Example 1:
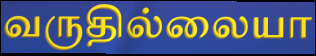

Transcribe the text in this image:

வருதில்லையா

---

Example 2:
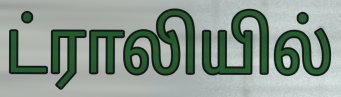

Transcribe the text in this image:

ட்ராலியில்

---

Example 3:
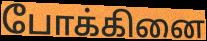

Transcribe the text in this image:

போக்கினை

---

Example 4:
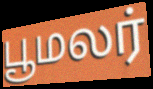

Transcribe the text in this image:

பூமலர்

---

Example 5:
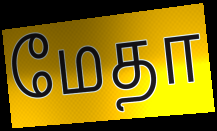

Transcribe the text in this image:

மேதா